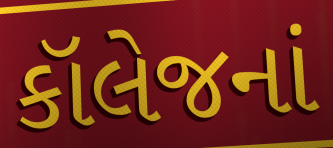
કૉલેજનાં